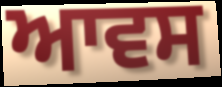
ਆਵਸ